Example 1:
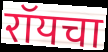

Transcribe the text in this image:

रॉयचा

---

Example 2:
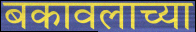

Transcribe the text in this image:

बकावलाच्या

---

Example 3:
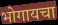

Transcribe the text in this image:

भोगायचा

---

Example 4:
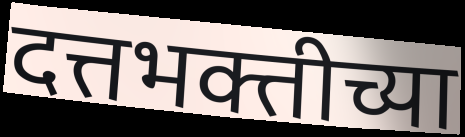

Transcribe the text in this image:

दत्तभक्तीच्या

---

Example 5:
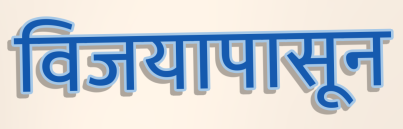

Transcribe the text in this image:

विजयापासून